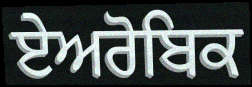
ਏਅਰੋਬਿਕ